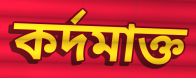
কর্দমাক্ত